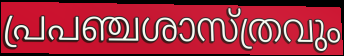
പ്രപഞ്ചശാസ്ത്രവും